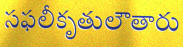
సఫలీకృతులౌతారు